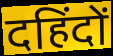
दहिंदों